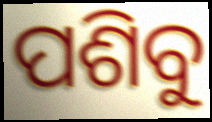
ପଶିବୁ